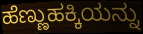
ಹೆಣ್ಣುಹಕ್ಕಿಯನ್ನು